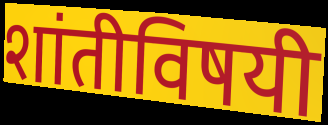
शांतीविषयी